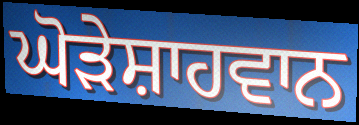
ਘੋੜੇਸ਼ਾਹਵਾਨ